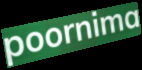
poornima